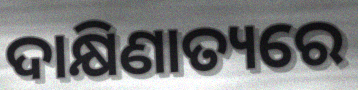
ଦାକ୍ଷିଣାତ୍ୟରେ